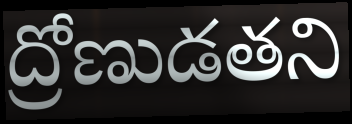
ద్రోణుడతని